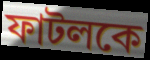
ফাটলকে